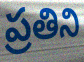
ప్రతిని